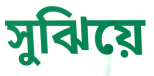
সুঝিয়ে